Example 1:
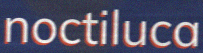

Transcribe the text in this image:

noctiluca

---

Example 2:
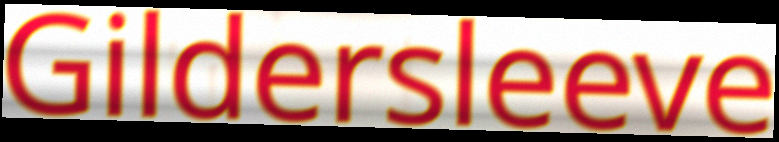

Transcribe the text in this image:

Gildersleeve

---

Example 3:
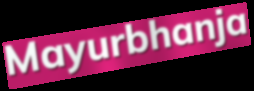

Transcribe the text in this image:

Mayurbhanja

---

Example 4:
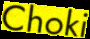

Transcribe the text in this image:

Choki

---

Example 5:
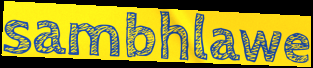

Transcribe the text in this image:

sambhlawe